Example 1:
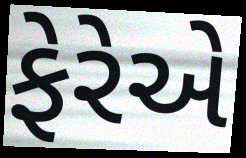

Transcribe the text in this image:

ફેરેએ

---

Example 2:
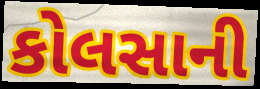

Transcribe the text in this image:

કોલસાની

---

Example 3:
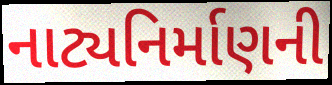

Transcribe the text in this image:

નાટ્યનિર્માણની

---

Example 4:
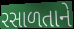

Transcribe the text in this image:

રસાળતાને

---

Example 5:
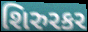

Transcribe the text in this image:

શિરુરકર